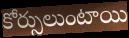
కోర్సులుంటాయి